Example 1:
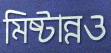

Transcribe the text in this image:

মিষ্টান্নও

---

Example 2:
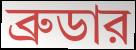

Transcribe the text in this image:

ব্রুডার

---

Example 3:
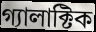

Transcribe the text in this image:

গ্যালাক্টিক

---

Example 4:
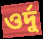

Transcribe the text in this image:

ওর্দু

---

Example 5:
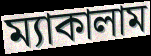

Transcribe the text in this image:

ম্যাকালাম